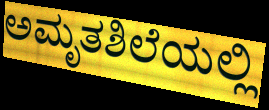
ಅಮೃತಶಿಲೆಯಲ್ಲಿ